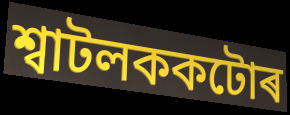
শ্বাটলককটোৰ